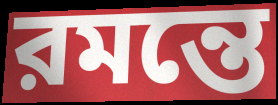
রমন্তে